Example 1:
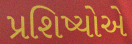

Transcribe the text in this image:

પ્રશિષ્યોએ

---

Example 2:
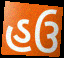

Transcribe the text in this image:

હઉ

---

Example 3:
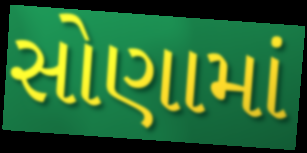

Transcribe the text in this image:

સોણામાં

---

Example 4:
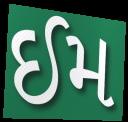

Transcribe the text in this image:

ઈમ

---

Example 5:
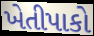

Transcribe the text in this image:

ખેતીપાકો